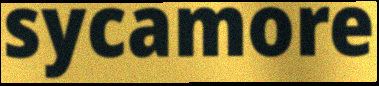
sycamore